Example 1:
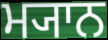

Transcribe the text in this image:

ਮ੍ਯਾਨ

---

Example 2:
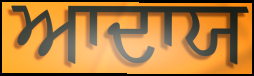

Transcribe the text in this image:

ਆਦਾਯ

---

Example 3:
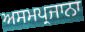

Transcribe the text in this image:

ਅਸਮਪ੍ਰਜਾਨਾ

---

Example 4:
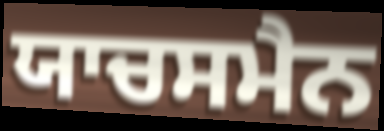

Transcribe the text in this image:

ਯਾਚਸਮੈਨ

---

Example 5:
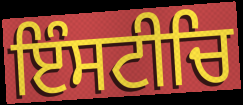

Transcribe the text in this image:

ਇੰਸਟੀਚਿ